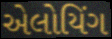
એલોયિંગ